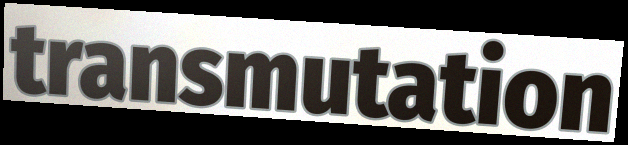
transmutation